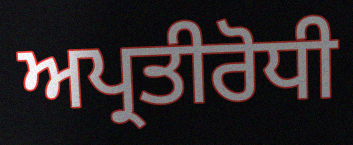
ਅਪ੍ਰਤੀਰੋਧੀ